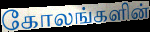
கோலங்களின்